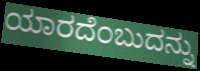
ಯಾರದೆಂಬುದನ್ನು